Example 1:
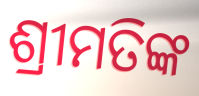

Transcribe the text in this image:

ଶ୍ରୀମତିଙ୍କ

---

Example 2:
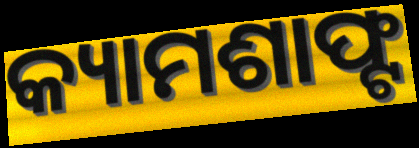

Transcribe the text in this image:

କ୍ୟାମଶାଫ୍ଟ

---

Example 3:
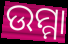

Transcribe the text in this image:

ଉମ୍ମା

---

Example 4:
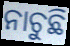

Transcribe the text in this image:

ନାଚୁଛି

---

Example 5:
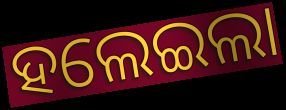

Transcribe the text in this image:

ହଲେଇଲା